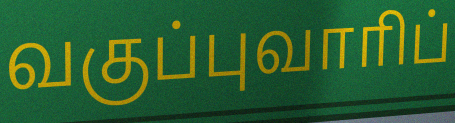
வகுப்புவாரிப்